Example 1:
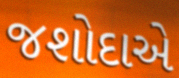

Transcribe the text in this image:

જશોદાએ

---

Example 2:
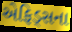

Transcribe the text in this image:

એફિડ્સના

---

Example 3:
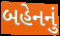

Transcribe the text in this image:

બહેનનું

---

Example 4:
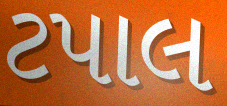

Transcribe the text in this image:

ટપાલ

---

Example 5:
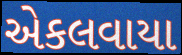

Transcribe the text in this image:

એકલવાયા